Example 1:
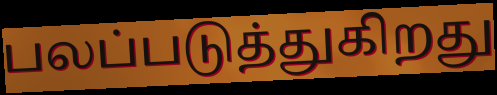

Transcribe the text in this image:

பலப்படுத்துகிறது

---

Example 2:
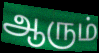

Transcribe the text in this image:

ஆரும்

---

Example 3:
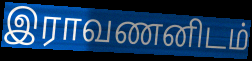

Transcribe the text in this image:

இராவணனிடம்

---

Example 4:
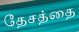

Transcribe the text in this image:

தேசத்தை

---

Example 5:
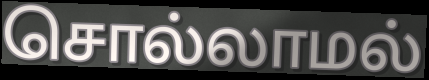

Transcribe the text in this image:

சொல்லாமல்